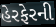
હેરફેરની